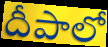
దీపాలో